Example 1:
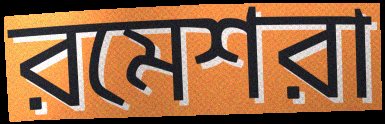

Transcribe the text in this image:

রমেশরা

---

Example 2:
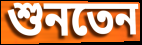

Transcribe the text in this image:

শুনতেন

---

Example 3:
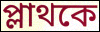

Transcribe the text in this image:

প্লাথকে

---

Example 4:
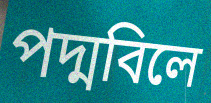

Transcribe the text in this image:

পদ্মবিলে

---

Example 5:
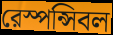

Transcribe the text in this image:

রেস্পন্সিবল